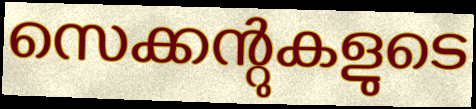
സെക്കന്റുകളുടെ